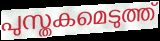
പുസ്തകമെടുത്ത്